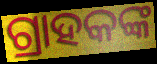
ଗ୍ରାହକଙ୍କ